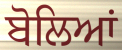
ਬੋਲਿਆਂ